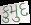
કુમુદ